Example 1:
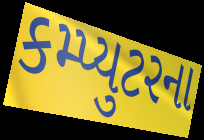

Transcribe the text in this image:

કમ્પ્યુટરના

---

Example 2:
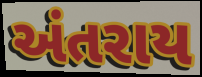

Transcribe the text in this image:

અંતરાય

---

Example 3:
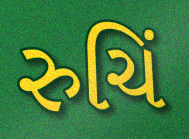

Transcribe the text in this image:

રુચિં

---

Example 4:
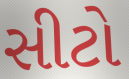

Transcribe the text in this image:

સીટો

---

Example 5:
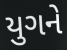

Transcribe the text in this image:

યુગને